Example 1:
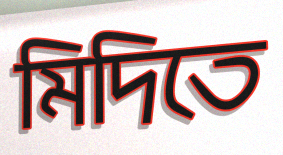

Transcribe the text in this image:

মিদিতে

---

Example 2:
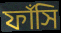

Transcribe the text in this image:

ফাঁসি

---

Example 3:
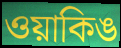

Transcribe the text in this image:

ওয়াকিঙ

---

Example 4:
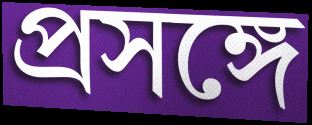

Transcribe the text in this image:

প্রসঙ্গে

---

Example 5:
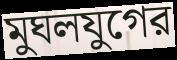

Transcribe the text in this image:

মুঘলযুগের